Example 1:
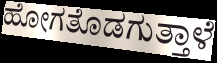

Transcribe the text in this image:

ಹೋಗತೊಡಗುತ್ತಾಳೆ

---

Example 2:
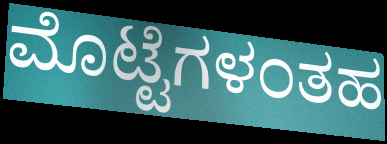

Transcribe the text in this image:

ಮೊಟ್ಟೆಗಳಂತಹ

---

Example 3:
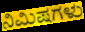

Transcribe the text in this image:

ನಿಮಿಷಗಳು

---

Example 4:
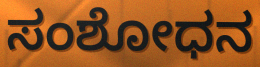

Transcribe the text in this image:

ಸಂಶೋಧನ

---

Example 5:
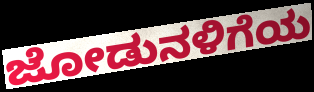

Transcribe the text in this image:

ಜೋಡುನಳಿಗೆಯ